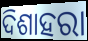
ଦିଶାହରା